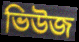
ভিউজ